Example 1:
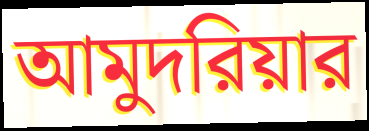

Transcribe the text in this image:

আমুদরিয়ার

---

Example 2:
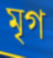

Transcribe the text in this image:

মৃগ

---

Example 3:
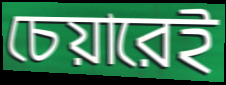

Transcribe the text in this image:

চেয়ারেই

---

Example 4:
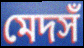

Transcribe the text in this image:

মেদসঁ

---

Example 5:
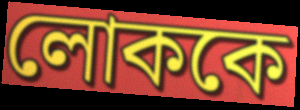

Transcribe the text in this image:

লোককে